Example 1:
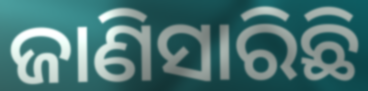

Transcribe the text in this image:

ଜାଣିସାରିଛି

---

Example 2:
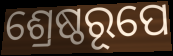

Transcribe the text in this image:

ଶ୍ରେଷ୍ଠରୂପେ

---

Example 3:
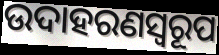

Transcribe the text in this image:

ଉଦାହରଣସ୍ୱରୂପ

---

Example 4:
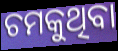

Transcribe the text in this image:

ଚମକୁଥିବା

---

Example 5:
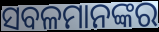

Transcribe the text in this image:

ସବଳମାନଙ୍କର